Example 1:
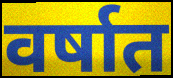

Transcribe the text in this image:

वर्षात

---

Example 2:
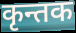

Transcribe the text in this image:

कृन्तक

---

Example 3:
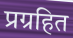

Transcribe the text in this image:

प्रग्रहित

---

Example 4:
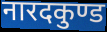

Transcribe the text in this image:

नारदकुण्ड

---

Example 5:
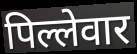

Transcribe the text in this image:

पिल्लेवार